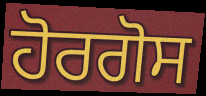
ਹੋਰਗੋਸ